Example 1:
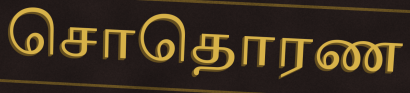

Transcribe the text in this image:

சொதொரண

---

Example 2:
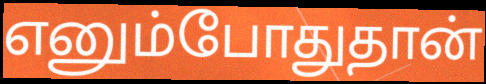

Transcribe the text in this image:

எனும்போதுதான்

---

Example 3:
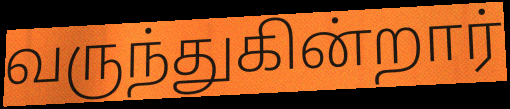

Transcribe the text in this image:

வருந்துகின்றார்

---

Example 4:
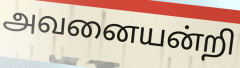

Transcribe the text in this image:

அவனையன்றி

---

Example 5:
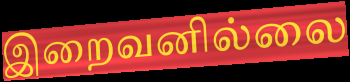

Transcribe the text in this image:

இறைவனில்லை